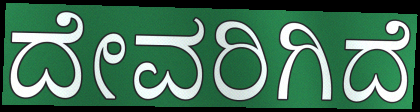
ದೇವರಿಗಿದೆ